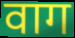
वाग